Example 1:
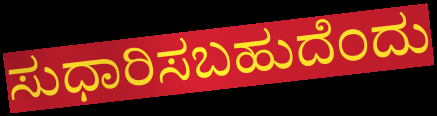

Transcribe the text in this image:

ಸುಧಾರಿಸಬಹುದೆಂದು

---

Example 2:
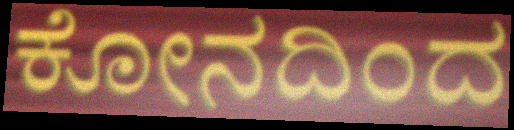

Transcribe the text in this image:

ಕೋನದಿಂದ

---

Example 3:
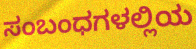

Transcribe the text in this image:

ಸಂಬಂಧಗಳಲ್ಲಿಯ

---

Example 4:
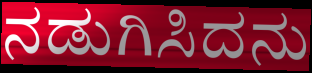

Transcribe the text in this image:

ನಡುಗಿಸಿದನು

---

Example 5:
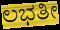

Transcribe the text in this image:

ಲಭತೀ